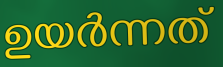
ഉയർന്നത്